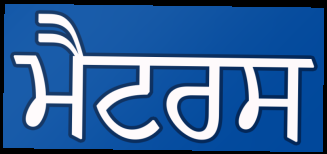
ਮੈਟਰਸ